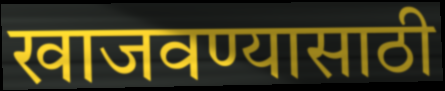
खाजवण्यासाठी